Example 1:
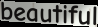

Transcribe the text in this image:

beautiful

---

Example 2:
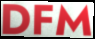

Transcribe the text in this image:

DFM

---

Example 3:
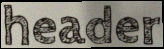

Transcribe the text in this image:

header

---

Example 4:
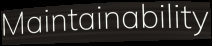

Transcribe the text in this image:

Maintainability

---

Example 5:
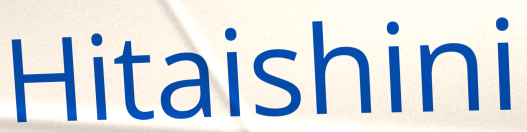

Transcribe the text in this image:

Hitaishini